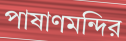
পাষাণমন্দির